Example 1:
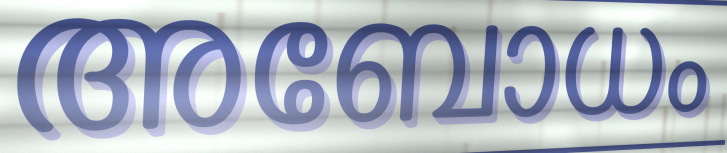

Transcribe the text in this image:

അബോധം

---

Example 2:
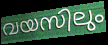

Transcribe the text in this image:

വയസിലും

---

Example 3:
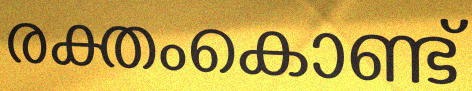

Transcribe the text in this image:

രക്തംകൊണ്ട്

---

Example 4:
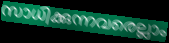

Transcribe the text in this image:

സാധിക്കുന്നവരെല്ലാം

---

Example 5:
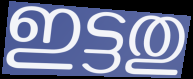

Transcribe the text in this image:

ഇട്ടതു